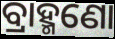
ବ୍ରାହ୍ମଣୋ